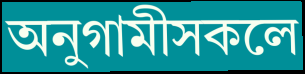
অনুগামীসকলে